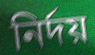
নির্দয়